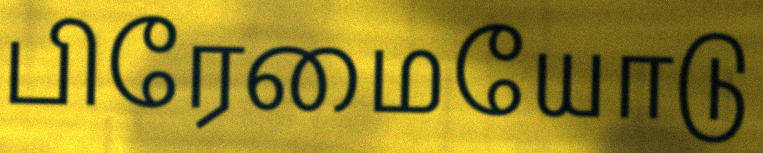
பிரேமையோடு